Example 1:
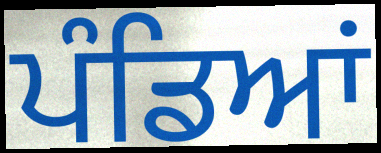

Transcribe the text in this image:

ਪੰਡਿਆਂ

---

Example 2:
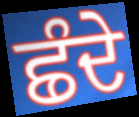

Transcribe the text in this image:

ਛੰਦੇ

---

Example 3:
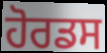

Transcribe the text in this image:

ਹੋਰਡਸ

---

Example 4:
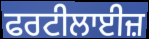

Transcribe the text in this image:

ਫਰਟੀਲਾਈਜ਼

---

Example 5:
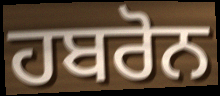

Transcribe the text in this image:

ਹਬਰੋਨ